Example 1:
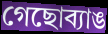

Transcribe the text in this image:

গেছোব্যাঙ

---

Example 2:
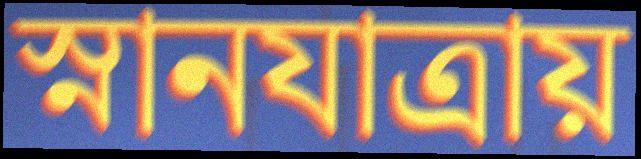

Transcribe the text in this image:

স্নানযাত্রায়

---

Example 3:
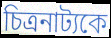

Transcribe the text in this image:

চিত্রনাট্যকে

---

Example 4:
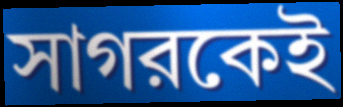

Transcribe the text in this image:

সাগরকেই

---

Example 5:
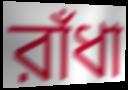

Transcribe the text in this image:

রাঁধা